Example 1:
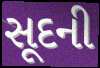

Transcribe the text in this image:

સૂદની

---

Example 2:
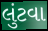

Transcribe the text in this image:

લુંટવા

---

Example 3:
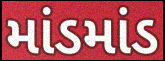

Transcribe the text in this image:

માંડમાંડ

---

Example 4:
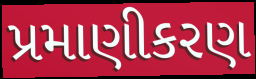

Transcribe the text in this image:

પ્રમાણીકરણ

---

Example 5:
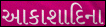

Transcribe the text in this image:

આકાશાદિના